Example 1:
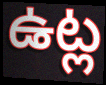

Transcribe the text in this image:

ఉట్ల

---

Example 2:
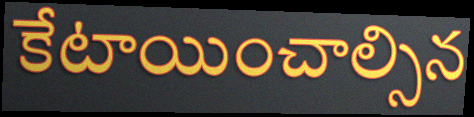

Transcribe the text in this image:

కేటాయించాల్సిన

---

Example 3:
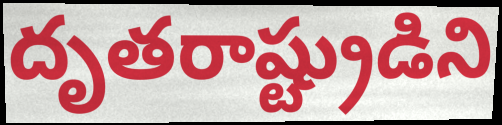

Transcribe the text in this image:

దృతరాష్ట్రుడిని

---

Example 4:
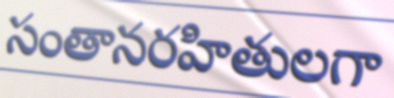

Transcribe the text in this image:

సంతానరహితులగా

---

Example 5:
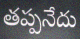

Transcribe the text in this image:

తప్పనేదు